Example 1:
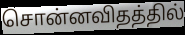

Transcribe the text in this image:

சொன்னவிதத்தில்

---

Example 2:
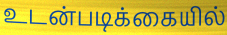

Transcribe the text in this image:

உடன்படிக்கையில்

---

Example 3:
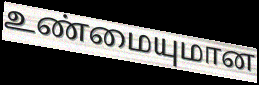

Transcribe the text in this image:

உண்மையுமான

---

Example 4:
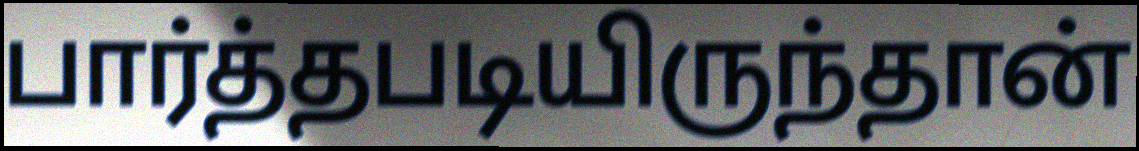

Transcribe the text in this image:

பார்த்தபடியிருந்தான்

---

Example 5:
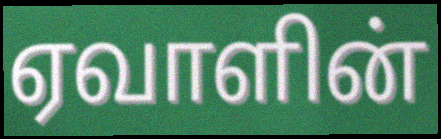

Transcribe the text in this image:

ஏவாளின்